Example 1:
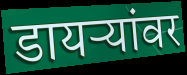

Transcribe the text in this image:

डायऱ्यांवर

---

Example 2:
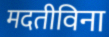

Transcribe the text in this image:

मदतीविना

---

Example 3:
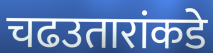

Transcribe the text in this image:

चढउतारांकडे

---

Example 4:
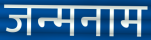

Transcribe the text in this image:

जन्मनाम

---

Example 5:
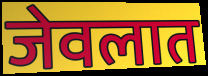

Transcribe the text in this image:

जेवलात